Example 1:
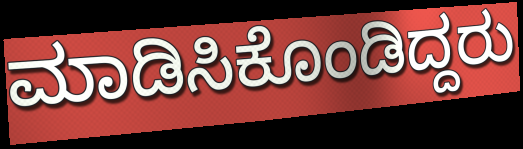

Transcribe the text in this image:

ಮಾಡಿಸಿಕೊಂಡಿದ್ದರು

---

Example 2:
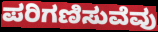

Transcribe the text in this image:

ಪರಿಗಣಿಸುವೆವು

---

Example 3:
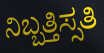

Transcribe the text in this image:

ನಿಬ್ಬತ್ತಿಸ್ಸತಿ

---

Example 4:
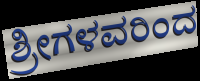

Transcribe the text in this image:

ಶ್ರೀಗಳವರಿಂದ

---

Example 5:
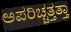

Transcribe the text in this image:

ಅಪರಿಚ್ಚತ್ತತ್ತಾ